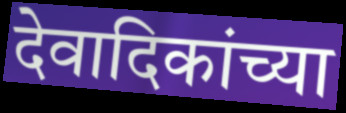
देवादिकांच्या